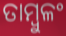
ତାମ୍ବୁଳଂ